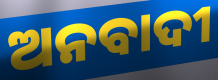
ଅନବାଦୀ